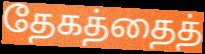
தேகத்தைத்